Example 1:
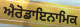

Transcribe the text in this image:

ਐਰੋਡਾਇਨਾਮਿਕ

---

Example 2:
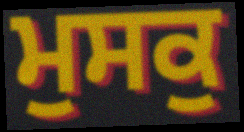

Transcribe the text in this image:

ਮੁਸਕੁ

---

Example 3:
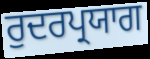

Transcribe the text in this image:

ਰੁਦਰਪ੍ਰਯਾਗ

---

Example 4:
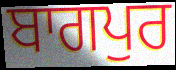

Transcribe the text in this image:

ਬਾਗਪੁਰ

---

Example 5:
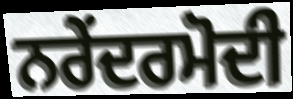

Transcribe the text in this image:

ਨਰੇਂਦਰਮੋਦੀ